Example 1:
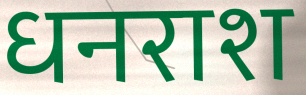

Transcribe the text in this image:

धनराश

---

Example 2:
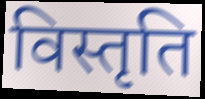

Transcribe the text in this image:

विस्तृति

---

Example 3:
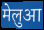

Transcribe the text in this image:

मेलुआ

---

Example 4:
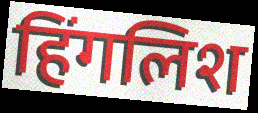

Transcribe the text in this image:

हिंगलिश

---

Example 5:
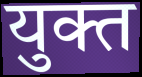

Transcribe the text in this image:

युक्त